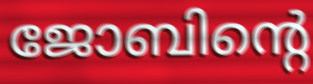
ജോബിന്റെ